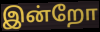
இன்றோ